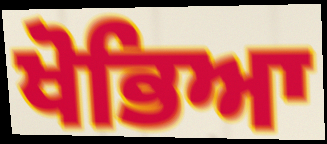
ਖੋਭਿਆ